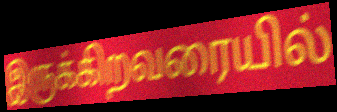
இருக்கிறவரையில்